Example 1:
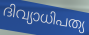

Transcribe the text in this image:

ദിവ്യാധിപത്യ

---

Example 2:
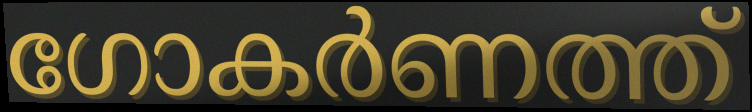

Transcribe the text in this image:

ഗോകർണത്ത്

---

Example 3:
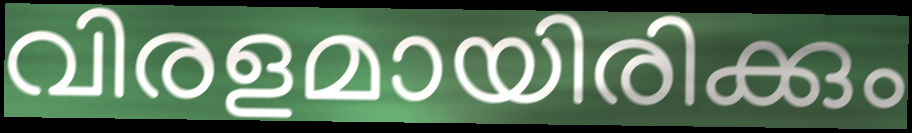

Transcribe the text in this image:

വിരളമായിരിക്കും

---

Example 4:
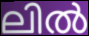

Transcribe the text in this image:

ലിൽ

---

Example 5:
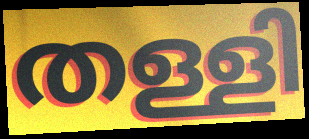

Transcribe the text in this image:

തള്ളി